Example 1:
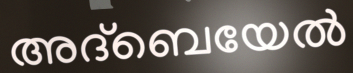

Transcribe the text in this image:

അദ്ബെയേൽ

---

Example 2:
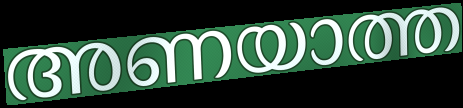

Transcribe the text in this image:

അണയാത്ത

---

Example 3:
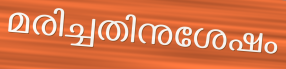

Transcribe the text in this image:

മരിച്ചതിനുശേഷം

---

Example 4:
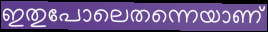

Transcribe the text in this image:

ഇതുപോലെതന്നെയാണ്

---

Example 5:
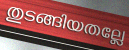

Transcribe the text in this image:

തുടങ്ങിയതല്ലേ